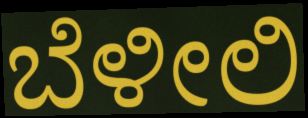
ಬೆಳೀಲಿ